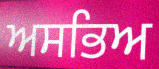
ਅਸਭਿਅ